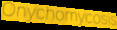
Onychomycosis